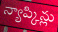
న్యాప్కిన్లు